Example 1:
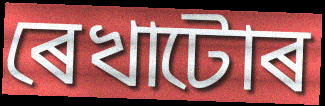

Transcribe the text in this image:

ৰেখাটোৰ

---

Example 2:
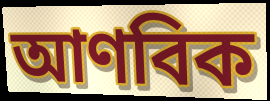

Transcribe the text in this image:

আণবিক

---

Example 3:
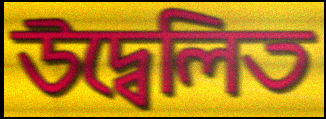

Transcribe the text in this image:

উদ্বেলিত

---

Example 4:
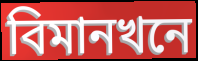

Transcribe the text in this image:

বিমানখনে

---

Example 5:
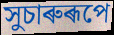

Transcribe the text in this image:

সুচাৰুৰূপে